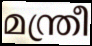
മന്ത്രീ